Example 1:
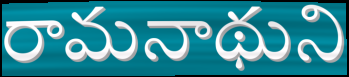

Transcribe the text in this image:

రామనాథుని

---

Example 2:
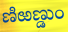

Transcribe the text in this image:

ణిఱణ్డుం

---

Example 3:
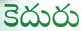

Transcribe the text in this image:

కెదురు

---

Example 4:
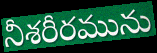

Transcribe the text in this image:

నీశరీరమును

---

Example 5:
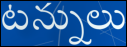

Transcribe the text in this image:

టన్నులు